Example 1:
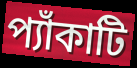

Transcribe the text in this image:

প্যাঁকাটি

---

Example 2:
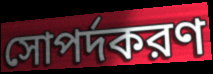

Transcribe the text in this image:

সোপর্দকরণ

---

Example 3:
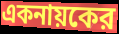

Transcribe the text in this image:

একনায়কের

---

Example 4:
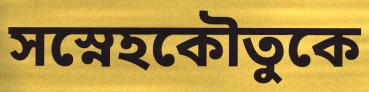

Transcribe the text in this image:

সস্নেহকৌতুকে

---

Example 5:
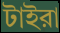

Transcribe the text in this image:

টাইরা